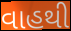
વાહથી